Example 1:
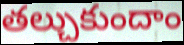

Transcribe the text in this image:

తల్చుకుందాం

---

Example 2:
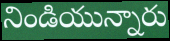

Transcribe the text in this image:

నిండియున్నారు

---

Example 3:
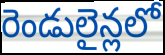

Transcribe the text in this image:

రెండులైన్లలో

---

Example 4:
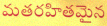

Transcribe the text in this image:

మతరహితమైన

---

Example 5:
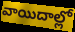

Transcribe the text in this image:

వాయిదాల్లో